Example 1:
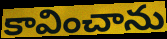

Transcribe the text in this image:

కావించాను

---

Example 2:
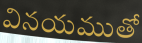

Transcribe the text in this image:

వినయముతో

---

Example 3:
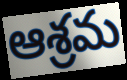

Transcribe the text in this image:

ఆశ్రమ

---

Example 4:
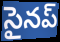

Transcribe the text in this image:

సైనప్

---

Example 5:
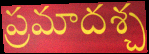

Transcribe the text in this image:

ప్రమాదశ్చ